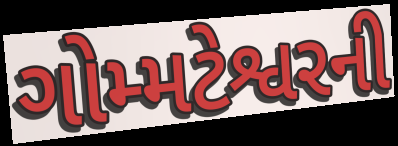
ગોમ્મટેશ્વરની